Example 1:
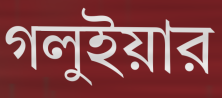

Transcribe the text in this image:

গলুইয়ার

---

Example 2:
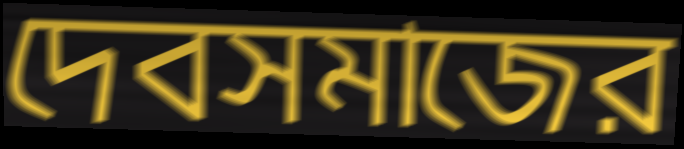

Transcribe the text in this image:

দেবসমাজের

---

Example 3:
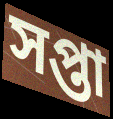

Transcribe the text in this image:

সপ্তা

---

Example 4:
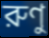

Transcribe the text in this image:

রুণু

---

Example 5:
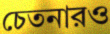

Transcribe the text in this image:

চেতনারও